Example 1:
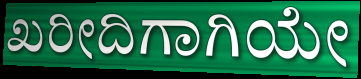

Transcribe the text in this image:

ಖರೀದಿಗಾಗಿಯೇ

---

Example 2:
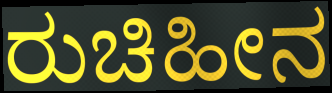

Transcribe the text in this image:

ರುಚಿಹೀನ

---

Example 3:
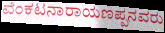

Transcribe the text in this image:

ವೆಂಕಟನಾರಾಯಣಪ್ಪನವರು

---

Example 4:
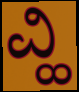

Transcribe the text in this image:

ವ್ಹಿ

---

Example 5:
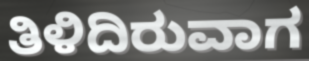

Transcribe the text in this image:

ತಿಳಿದಿರುವಾಗ